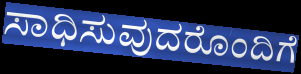
ಸಾಧಿಸುವುದರೊಂದಿಗೆ